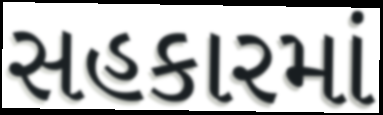
સહકારમાં